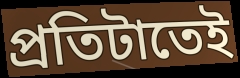
প্রতিটাতেই